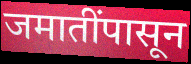
जमातींपासून